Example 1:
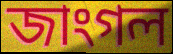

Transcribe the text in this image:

জাংগল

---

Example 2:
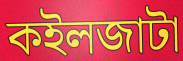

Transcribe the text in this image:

কইলজাটা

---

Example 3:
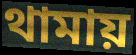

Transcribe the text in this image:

থামায়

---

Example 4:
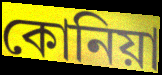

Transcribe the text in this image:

কোনিয়া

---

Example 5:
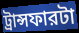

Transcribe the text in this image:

ট্রান্সফারটা